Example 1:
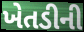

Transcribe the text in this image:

ખેતડીની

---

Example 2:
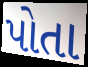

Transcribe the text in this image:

પોતા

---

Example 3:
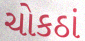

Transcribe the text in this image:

ચોકઠાં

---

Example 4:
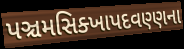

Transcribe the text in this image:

પઞ્ચમસિક્ખાપદવણ્ણના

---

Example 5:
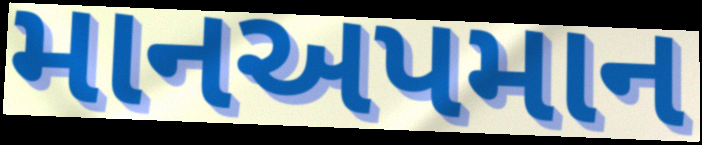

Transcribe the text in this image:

માનઅપમાન